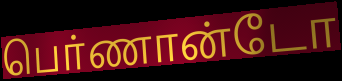
பெர்ணான்டோ